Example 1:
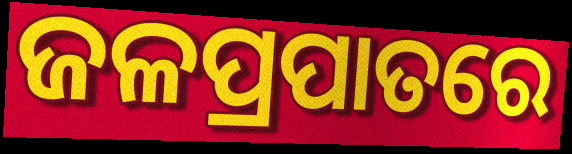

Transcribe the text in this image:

ଜଳପ୍ରପାତରେ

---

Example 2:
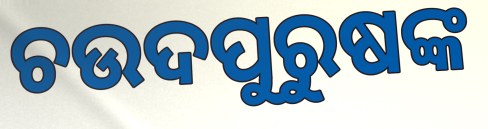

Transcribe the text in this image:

ଚଉଦପୁରୁଷଙ୍କ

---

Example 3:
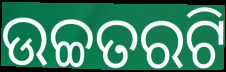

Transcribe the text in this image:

ଉଚ୍ଚତରଟି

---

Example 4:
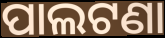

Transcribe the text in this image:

ପାଲଟଣା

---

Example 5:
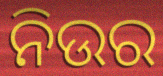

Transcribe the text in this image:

ନିଉର